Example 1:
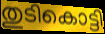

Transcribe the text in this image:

തുടികൊട്ടി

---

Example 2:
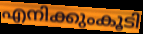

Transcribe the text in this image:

എനിക്കുംകൂടി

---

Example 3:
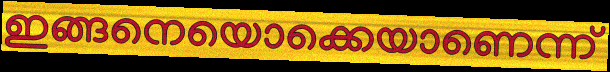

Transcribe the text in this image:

ഇങ്ങനെയൊക്കെയാണെന്ന്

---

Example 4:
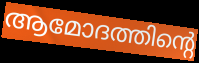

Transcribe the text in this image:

ആമോദത്തിന്റെ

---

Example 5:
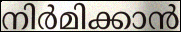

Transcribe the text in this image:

നിർമിക്കാൻ